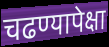
चढण्यापेक्षा